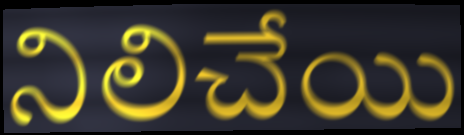
నిలిచేయి